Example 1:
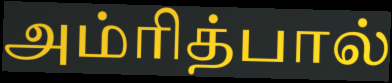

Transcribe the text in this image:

அம்ரித்பால்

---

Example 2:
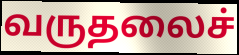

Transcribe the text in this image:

வருதலைச்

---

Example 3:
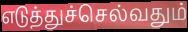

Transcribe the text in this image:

எடுத்துச்செல்வதும்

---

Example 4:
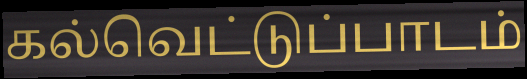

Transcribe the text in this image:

கல்வெட்டுப்பாடம்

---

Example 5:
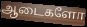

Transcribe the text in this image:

ஆடைகளோ